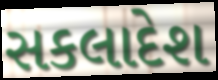
સકલાદેશ